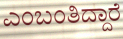
ಎಂಬಂತಿದ್ದಾರೆ